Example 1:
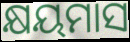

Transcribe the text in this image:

କ୍ଷୟମାସ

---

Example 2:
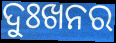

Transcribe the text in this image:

ଦୁଃଖନର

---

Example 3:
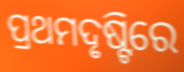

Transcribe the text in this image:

ପ୍ରଥମଦୃଷ୍ଟିରେ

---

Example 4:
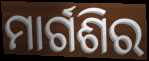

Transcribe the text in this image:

ମାର୍ଗଶିର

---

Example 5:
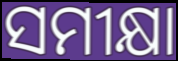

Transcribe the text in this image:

ସମୀକ୍ଷା